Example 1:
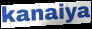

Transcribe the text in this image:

kanaiya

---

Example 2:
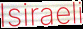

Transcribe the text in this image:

Isiraeli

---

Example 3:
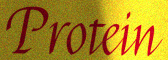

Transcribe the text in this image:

Protein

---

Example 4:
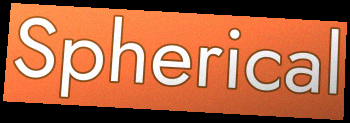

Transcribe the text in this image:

Spherical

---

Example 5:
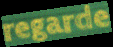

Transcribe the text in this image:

regarde